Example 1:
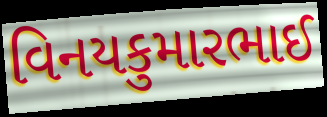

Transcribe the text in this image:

વિનયકુમારભાઈ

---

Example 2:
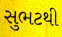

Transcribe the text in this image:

સુભટથી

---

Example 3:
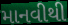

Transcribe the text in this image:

માનવીથી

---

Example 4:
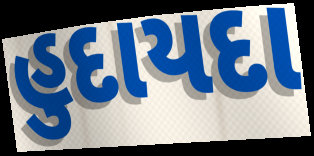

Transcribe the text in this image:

હુદાયદા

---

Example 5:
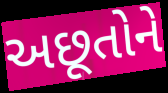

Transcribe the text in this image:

અછૂતોને